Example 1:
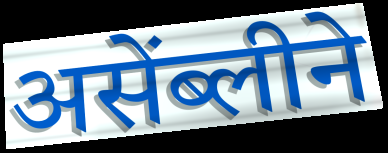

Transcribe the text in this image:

असेंब्लीने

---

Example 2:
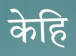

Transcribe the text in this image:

केहि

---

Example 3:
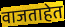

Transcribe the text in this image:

वाजताहेत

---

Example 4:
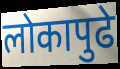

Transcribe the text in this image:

लोकापुढे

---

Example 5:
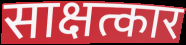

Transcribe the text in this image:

साक्षत्कार